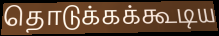
தொடுக்கக்கூடிய